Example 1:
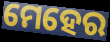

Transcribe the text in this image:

ମେହେର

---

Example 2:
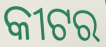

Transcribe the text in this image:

କୀଟର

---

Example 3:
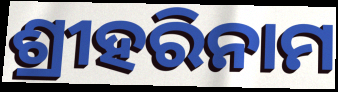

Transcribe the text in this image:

ଶ୍ରୀହରିନାମ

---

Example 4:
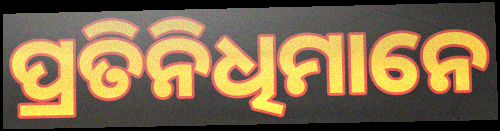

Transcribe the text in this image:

ପ୍ରତିନିଧିମାନେ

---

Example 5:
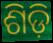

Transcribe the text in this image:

ଶିଡ଼ି